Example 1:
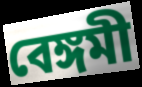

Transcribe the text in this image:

বেঙ্গমী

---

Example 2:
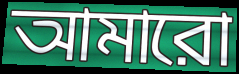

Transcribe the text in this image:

আমারো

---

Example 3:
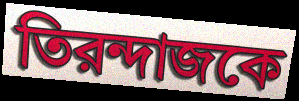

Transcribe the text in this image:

তিরন্দাজকে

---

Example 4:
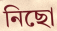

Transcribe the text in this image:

নিছো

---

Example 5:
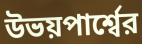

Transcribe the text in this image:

উভয়পার্শ্বের